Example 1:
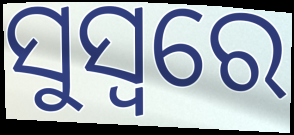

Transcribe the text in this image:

ସୁସ୍ୱରେ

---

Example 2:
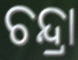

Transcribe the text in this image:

ଚନ୍ଦ୍ରା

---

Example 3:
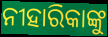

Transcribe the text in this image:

ନୀହାରିକାଙ୍କୁ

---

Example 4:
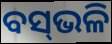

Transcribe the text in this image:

ବସ୍‌ଭଳି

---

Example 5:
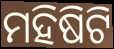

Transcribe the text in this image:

ମହିଷିଟି